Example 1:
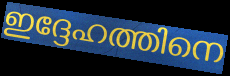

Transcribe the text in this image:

ഇദ്ദേഹത്തിനെ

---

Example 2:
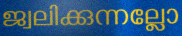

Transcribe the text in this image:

ജ്വലിക്കുന്നല്ലോ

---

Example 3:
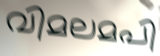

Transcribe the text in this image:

വിമലമപി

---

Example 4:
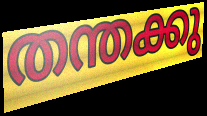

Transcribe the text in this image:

തന്തക്കു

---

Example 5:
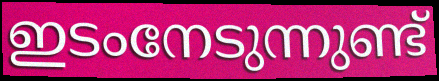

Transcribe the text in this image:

ഇടംനേടുന്നുണ്ട്